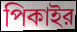
পিকাইর